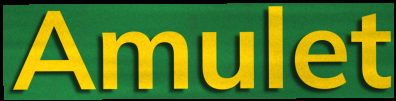
Amulet